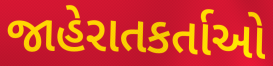
જાહેરાતકર્તાઓ